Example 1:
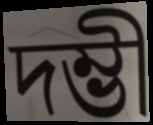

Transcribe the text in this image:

দম্ভী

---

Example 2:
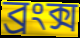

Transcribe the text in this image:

ব্রংক্স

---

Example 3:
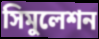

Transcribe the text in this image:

সিমুলেশন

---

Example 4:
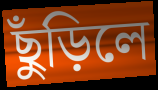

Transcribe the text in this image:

ছুঁড়িলে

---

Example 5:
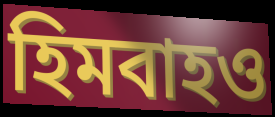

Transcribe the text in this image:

হিমবাহও